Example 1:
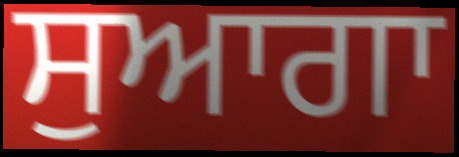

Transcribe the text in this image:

ਸੁਆਗਾ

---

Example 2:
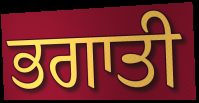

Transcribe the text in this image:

ਭਗਾਤੀ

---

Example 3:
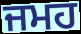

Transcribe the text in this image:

ਜਮਹ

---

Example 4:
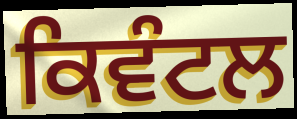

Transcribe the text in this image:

ਕਿਵੰਟਲ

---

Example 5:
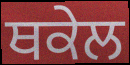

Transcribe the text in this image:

ਥਕੇਲ